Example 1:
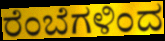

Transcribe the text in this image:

ರೆಂಬೆಗಳಿಂದ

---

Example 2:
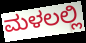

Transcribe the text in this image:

ಮಳಲಲ್ಲಿ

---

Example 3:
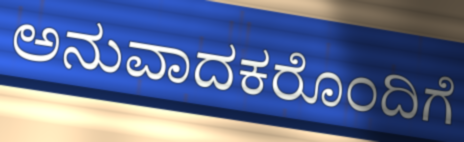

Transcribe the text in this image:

ಅನುವಾದಕರೊಂದಿಗೆ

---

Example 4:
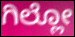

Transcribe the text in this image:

ಗಿಲ್ಲೋ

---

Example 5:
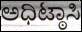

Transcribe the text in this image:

ಅಧಿಟ್ಠಾಸಿ